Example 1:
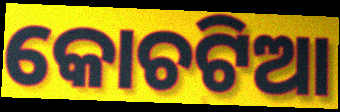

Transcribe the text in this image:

କୋଚଟିଆ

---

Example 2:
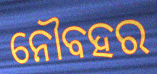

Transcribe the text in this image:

ନୌବହର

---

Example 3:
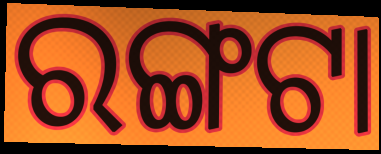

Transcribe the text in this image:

ରଙ୍ଗଟା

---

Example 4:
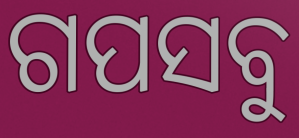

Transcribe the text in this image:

ଗପସବୁ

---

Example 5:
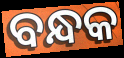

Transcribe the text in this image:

ବନ୍ଧକ